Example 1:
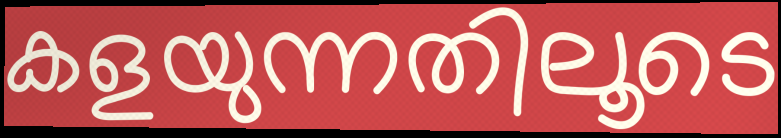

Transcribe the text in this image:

കളയുന്നതിലൂടെ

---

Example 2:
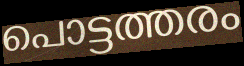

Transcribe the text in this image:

പൊട്ടത്തരം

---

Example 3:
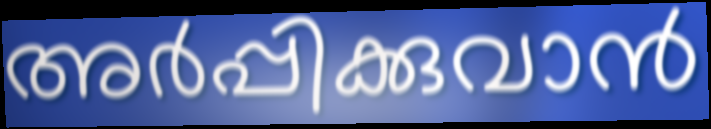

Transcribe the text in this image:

അർപ്പിക്കുവാൻ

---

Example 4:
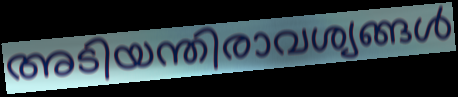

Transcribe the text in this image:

അടിയന്തിരാവശ്യങ്ങൾ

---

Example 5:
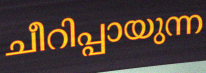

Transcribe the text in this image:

ചീറിപ്പായുന്ന